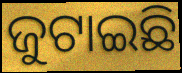
ଜୁଟାଇଛି